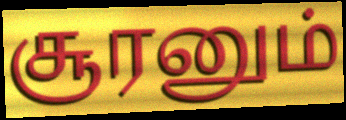
சூரனும்